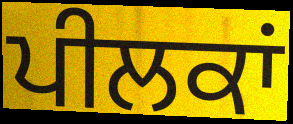
ਪੀਲਕਾਂ